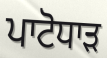
ਪਾਟੋਧਾੜ